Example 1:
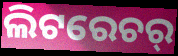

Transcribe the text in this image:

ଲିଟରେଚର୍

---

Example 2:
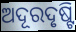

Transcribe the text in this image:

ଅଦୂରଦୃଷ୍ଟି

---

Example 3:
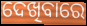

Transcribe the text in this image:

ଦେଖିବାରେ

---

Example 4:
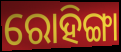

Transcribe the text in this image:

ରୋହିଙ୍ଗା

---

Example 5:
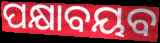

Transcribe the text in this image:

ପକ୍ଷାବୟବ